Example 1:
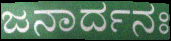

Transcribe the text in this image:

ಜನಾರ್ದನಃ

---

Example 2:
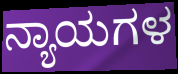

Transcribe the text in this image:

ನ್ಯಾಯಗಳ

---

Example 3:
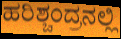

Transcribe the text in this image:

ಹರಿಶ್ಚಂದ್ರನಲ್ಲಿ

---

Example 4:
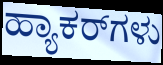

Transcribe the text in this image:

ಹ್ಯಾಕರ್‌ಗಳು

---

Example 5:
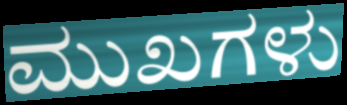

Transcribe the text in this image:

ಮುಖಗಳು